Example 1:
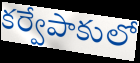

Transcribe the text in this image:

కర్వేపాకులో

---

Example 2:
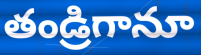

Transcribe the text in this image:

తండ్రిగానూ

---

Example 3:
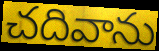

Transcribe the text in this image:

చదివాను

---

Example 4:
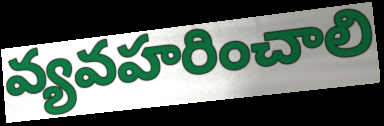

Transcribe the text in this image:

వ్యవహరించాలి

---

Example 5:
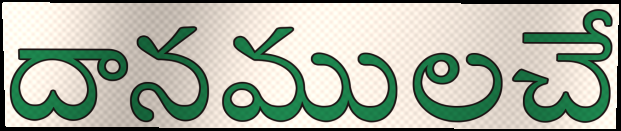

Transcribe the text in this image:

దానములచే